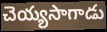
చెయ్యసాగాడు